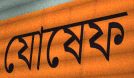
যোষেফ